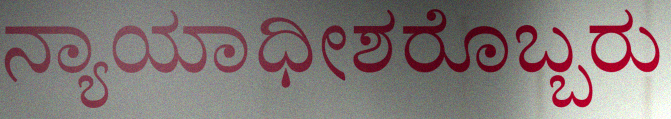
ನ್ಯಾಯಾಧೀಶರೊಬ್ಬರು